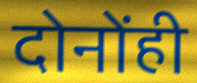
दोनोंही